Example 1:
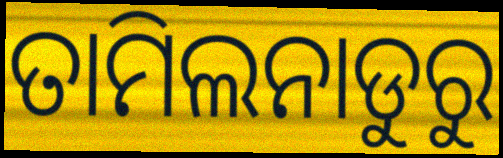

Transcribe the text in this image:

ତାମିଲନାଡୁରୁ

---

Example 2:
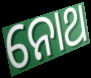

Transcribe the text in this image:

ନୋଥ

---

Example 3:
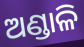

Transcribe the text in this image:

ଅଣ୍ଡାଳି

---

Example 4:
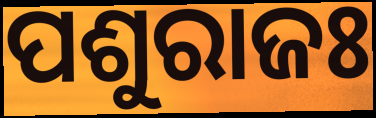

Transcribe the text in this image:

ପଶୁରାଜଃ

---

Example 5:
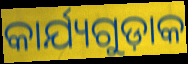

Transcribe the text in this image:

କାର୍ଯ୍ୟଗୁଡ଼ାକ